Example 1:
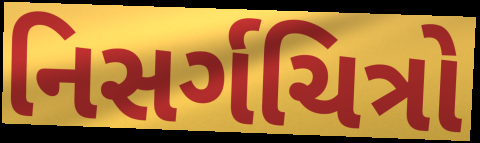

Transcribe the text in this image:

નિસર્ગચિત્રો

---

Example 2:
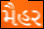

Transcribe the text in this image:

મૈહર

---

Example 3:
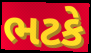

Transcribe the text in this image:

ભટકે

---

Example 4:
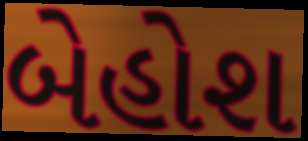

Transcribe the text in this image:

બેહોશ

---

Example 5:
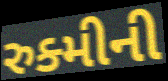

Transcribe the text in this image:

રુક્મીની